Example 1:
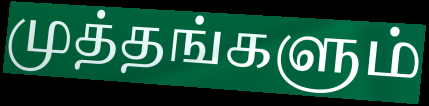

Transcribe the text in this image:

முத்தங்களும்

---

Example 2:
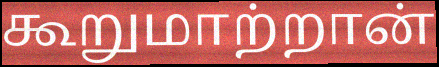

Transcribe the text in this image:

கூறுமாற்றான்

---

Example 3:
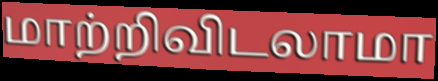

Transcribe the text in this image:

மாற்றிவிடலாமா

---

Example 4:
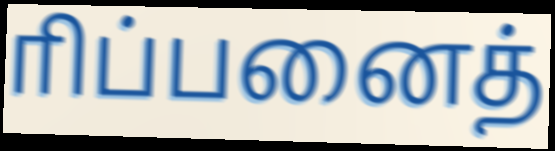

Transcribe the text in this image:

ரிப்பனைத்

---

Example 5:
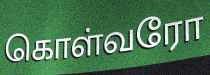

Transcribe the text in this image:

கொள்வரோ